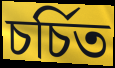
চর্চিত